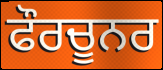
ਫੌਰਚੂਨਰ